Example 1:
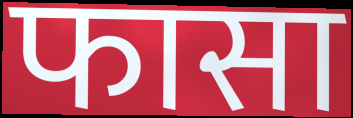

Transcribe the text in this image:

फासा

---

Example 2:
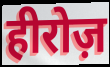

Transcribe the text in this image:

हीरोज़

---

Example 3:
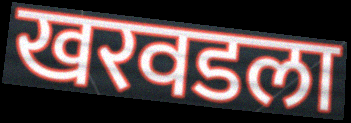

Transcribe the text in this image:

खरवडला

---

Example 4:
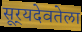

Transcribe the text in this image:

सूर्यदेवतेला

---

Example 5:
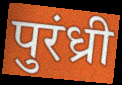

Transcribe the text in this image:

पुरंध्री